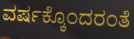
ವರ್ಷಕ್ಕೊಂದರಂತೆ